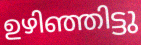
ഉഴിഞ്ഞിട്ടു